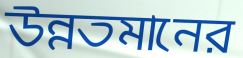
উন্নতমানের